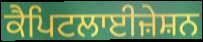
ਕੈਪਿਟਲਾਈਜ਼ੇਸ਼ਨ